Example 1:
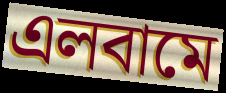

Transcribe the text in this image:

এলবামে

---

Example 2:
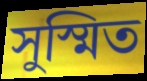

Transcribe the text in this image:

সুস্মিত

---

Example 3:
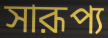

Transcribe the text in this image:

সারূপ্য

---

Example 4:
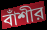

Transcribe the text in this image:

বাঁশীর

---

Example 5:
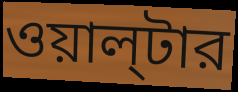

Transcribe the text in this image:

ওয়াল্‌টার